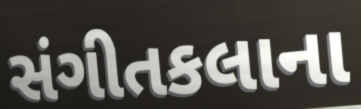
સંગીતકલાના